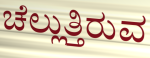
ಚೆಲ್ಲುತ್ತಿರುವ